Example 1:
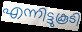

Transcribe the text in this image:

എന്നിട്ടുകൂടി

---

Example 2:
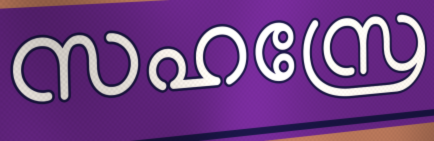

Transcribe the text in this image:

സഹസ്രേ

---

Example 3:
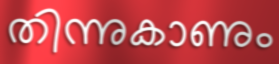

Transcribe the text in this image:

തിന്നുകാണും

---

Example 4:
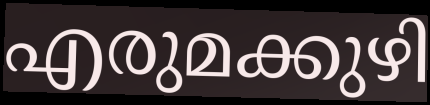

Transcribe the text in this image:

എരുമക്കുഴി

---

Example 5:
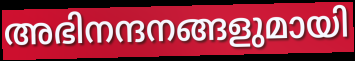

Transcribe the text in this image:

അഭിനന്ദനങ്ങളുമായി